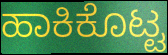
ಹಾಕಿಕೊಟ್ಟ